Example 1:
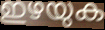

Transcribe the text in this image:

ഇഴയുക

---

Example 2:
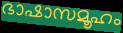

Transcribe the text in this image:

ഭാഷാസമൂഹം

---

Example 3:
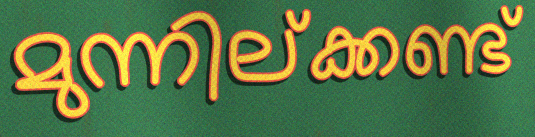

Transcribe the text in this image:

മുന്നില്ക്കണ്ട്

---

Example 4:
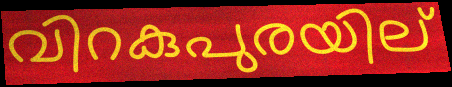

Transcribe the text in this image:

വിറകുപുരയില്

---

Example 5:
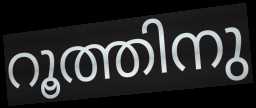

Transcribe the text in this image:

റൂത്തിനു